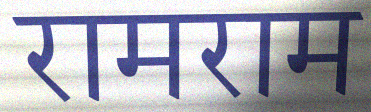
रामराम